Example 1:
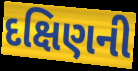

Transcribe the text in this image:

દક્ષિણની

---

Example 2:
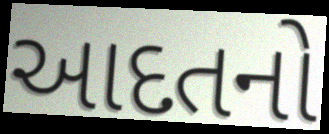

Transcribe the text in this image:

આદતનો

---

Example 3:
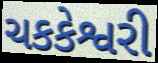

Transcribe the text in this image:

ચકકેશ્વરી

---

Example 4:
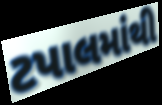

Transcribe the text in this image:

ટપાલમાંથી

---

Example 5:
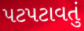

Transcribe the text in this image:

પટપટાવતું